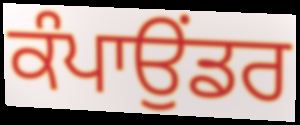
ਕੰਪਾਉਂਡਰ